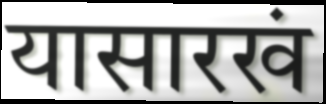
यासारखं